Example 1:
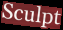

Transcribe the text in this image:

Sculpt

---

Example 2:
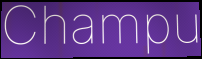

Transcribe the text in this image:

Champu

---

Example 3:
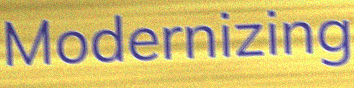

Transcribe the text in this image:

Modernizing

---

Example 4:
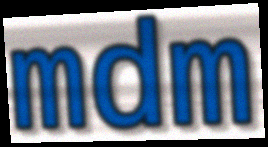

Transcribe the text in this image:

mdm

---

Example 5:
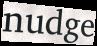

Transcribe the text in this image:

nudge